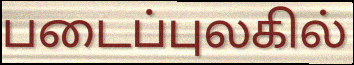
படைப்புலகில்